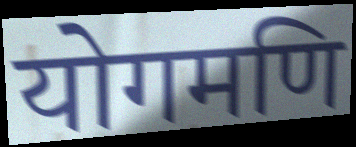
योगमणि